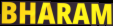
BHARAM